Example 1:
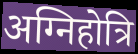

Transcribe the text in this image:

अग्निहोत्रि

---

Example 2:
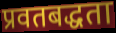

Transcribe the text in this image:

प्रवतबद्धता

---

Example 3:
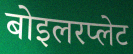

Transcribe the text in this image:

बोइलरप्लेट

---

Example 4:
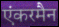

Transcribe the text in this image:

एंकरमैन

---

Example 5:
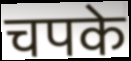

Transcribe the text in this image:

चपके